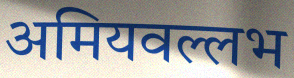
अमियवल्लभ